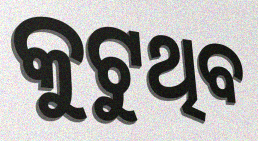
କୁଟୁଥିବ